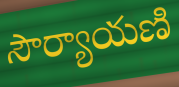
సౌర్యాయణి